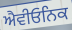
ਐਵੀਓਨਿਕ